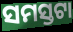
ସମସ୍ତଟା